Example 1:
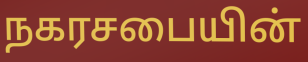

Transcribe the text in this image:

நகரசபையின்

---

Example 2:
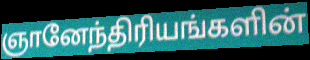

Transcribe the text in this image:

ஞானேந்திரியங்களின்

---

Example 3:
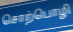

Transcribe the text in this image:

சொற்பொழி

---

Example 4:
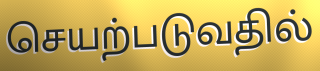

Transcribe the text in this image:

செயற்படுவதில்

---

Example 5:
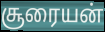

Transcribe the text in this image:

சூரையன்